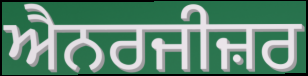
ਐਨਰਜੀਜ਼ਰ